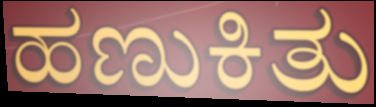
ಹಣುಕಿತು